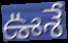
ఊశే